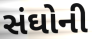
સંઘોની